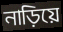
নাড়িয়ে